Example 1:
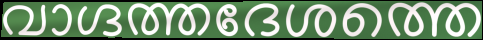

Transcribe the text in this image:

വാഗ്ദത്തദേശത്തെ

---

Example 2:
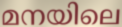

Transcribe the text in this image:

മനയിലെ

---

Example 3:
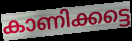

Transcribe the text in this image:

കാണിക്കട്ടെ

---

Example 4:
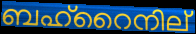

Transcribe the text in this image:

ബഹ്റൈനില്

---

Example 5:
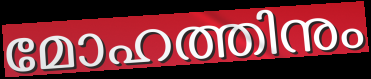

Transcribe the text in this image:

മോഹത്തിനും